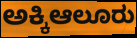
ಅಕ್ಕಿಆಲೂರು